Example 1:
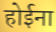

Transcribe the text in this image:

होईना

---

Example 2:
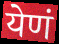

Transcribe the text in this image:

येणं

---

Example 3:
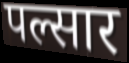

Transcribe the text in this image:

पल्सार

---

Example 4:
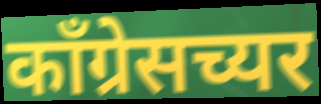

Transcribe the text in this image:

काँग्रेसच्यर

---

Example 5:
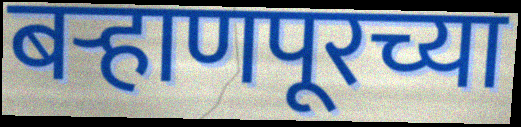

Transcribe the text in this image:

बऱ्हाणपूरच्या